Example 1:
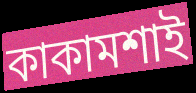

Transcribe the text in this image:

কাকামশাই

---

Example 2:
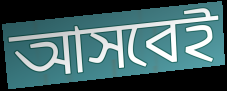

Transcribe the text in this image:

আসবেই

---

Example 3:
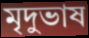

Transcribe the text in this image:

মৃদুভাষ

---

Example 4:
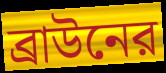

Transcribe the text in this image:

ব্রাউনের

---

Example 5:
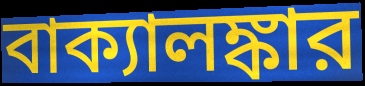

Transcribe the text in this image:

বাক্যালঙ্কার